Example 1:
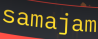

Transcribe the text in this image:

samajam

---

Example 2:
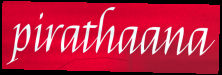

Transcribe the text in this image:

pirathaana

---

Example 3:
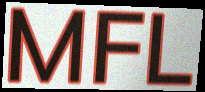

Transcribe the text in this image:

MFL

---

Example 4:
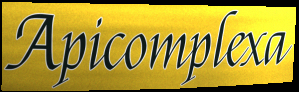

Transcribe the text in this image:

Apicomplexa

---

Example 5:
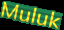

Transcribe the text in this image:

Muluk